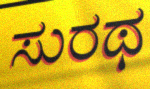
ಸುರಥ